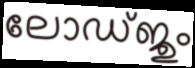
ലോഡ്ജും